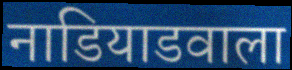
नाडियाडवाला